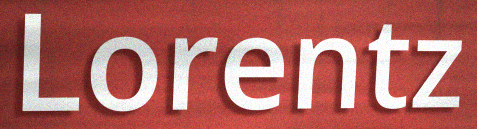
Lorentz